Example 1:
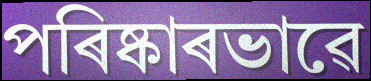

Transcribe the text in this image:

পৰিষ্কাৰভাৱে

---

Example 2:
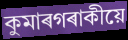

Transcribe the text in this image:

কুমাৰগৰাকীয়ে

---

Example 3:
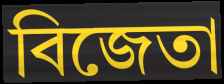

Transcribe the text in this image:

বিজেতা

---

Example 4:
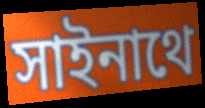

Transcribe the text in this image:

সাইনাথে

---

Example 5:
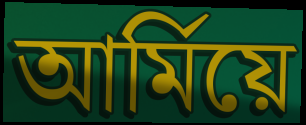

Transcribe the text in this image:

আৰ্মিয়ে